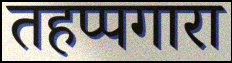
तहप्पगारा